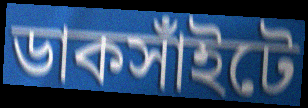
ডাকসাঁইটে